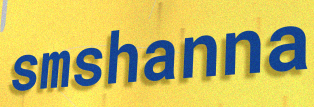
smshanna